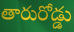
తారురోడ్డు